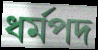
ধর্মপদ